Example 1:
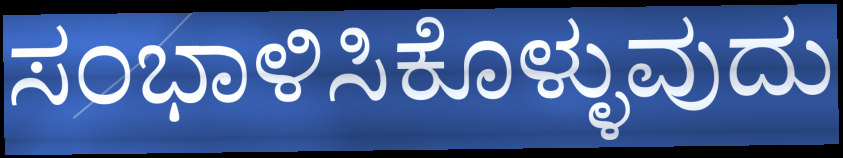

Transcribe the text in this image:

ಸಂಭಾಳಿಸಿಕೊಳ್ಳುವುದು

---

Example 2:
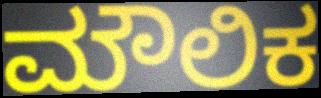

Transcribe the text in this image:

ಮೌಲಿಕ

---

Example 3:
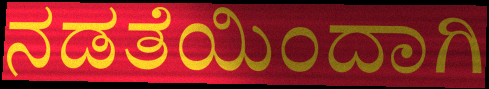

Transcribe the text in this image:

ನಡತೆಯಿಂದಾಗಿ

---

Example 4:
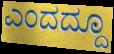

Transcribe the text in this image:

ಎಂದದ್ದೂ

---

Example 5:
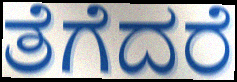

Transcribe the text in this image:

ತೆಗೆದರೆ